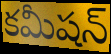
కమీషన్